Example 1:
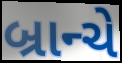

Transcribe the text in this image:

બ્રાન્ચે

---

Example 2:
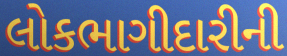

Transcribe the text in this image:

લોકભાગીદારીની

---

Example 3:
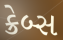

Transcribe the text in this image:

ક્રેબ્સ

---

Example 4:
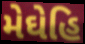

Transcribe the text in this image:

મેઘેહિ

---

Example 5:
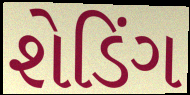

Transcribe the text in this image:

શેડિંગ